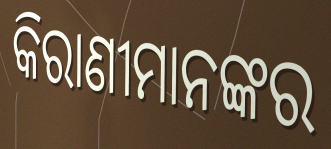
କିରାଣୀମାନଙ୍କର